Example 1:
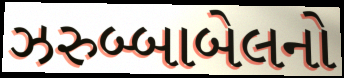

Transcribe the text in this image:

ઝરુબ્બાબેલનો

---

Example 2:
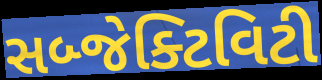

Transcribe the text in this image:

સબ્જેક્ટિવિટી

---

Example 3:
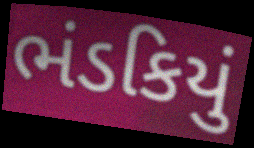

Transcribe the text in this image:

ભંડકિયું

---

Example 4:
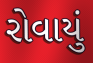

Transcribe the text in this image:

રોવાયું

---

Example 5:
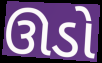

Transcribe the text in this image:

ઊડો